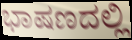
ಭಾಷಣದಲ್ಲಿ